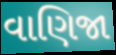
વાણિજા